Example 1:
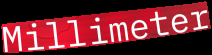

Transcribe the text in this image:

Millimeter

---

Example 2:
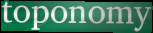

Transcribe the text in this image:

toponomy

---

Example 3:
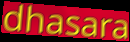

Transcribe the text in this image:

dhasara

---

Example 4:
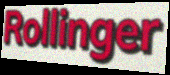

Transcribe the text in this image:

Rollinger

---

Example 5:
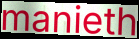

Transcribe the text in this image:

manieth